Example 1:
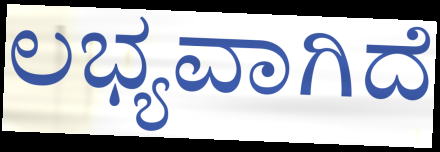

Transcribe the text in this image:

ಲಭ್ಯವಾಗಿದೆ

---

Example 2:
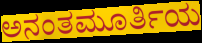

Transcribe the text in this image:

ಅನಂತಮೂರ್ತಿಯ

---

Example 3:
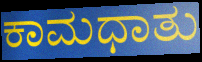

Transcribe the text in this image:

ಕಾಮಧಾತು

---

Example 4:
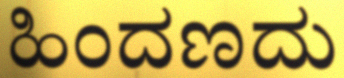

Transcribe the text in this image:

ಹಿಂದಣದು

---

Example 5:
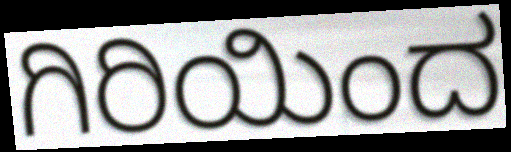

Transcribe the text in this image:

ಗಿರಿಯಿಂದ